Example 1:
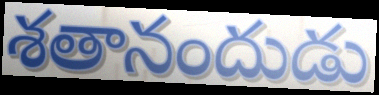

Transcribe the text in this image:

శతానందుడు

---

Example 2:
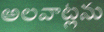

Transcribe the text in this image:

అలవాట్లను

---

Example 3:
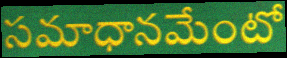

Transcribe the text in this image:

సమాధానమేంటో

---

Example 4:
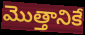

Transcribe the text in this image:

మొత్తానికే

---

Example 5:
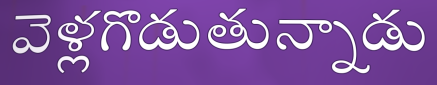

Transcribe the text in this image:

వెళ్లగొడుతున్నాడు